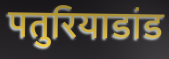
पतुरियाडांड